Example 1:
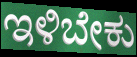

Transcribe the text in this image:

ಇಳಿಬೇಕು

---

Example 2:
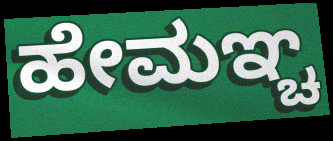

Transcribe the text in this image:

ಹೇಮಞ್ಚ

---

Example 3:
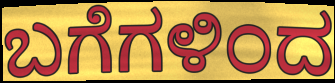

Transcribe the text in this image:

ಬಗೆಗಳಿಂದ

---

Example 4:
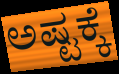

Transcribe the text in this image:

ಅಷ್ಟಕ್ಕೆ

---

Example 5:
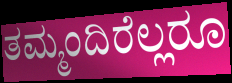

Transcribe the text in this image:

ತಮ್ಮಂದಿರೆಲ್ಲರೂ